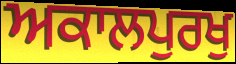
ਅਕਾਲਪੁਰਖੁ